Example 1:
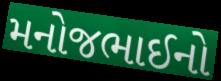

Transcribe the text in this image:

મનોજભાઈનો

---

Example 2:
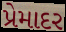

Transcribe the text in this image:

પ્રેમાદર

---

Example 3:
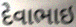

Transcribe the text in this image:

દેવાભાઇ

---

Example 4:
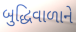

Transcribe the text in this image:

બુદ્ધિવાળાને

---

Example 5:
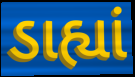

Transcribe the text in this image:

ડાહ્યાં